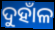
ଦୁହାଁଳ